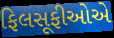
ફિલસૂફીઓએ